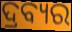
ଦ୍ରବ୍ୟର